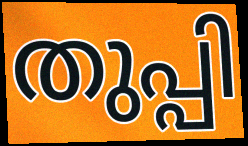
തുപ്പി